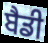
ਬੈਡੀ